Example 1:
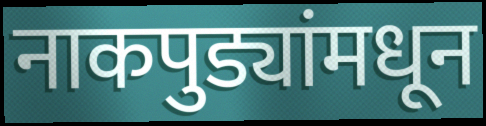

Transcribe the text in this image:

नाकपुड्यांमधून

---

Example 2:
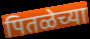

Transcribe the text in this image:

पितळेच्या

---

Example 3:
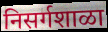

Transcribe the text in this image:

निसर्गशाळा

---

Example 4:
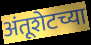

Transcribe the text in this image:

अंतूशेटच्या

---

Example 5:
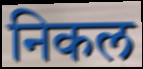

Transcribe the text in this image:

निकल